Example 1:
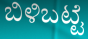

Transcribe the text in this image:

ಬಿಳಿಬಟ್ಟೆ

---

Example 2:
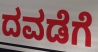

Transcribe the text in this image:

ದವಡೆಗೆ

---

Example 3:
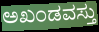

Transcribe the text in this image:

ಅಖಂಡವಸ್ತು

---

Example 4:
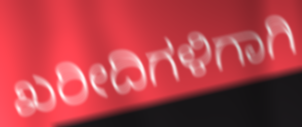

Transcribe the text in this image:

ಖರೀದಿಗಳಿಗಾಗಿ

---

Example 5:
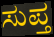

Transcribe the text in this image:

ಸುಪ್ತ